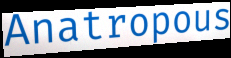
Anatropous